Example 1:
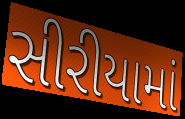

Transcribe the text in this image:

સીરીયામાં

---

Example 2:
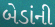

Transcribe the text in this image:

બેડાંની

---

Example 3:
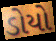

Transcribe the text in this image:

ડોયો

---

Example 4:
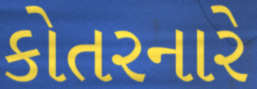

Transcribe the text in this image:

કોતરનારે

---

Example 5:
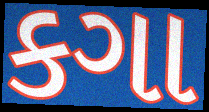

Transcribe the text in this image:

કગા